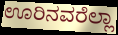
ಊರಿನವರೆಲ್ಲಾ